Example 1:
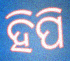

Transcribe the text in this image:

ହିପି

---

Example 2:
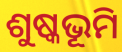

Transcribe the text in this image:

ଶୁଷ୍କଭୂମି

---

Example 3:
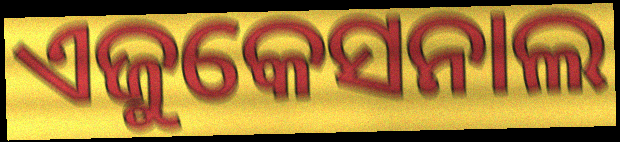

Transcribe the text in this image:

ଏଜୁକେସନାଲ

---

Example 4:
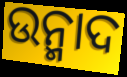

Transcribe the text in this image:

ଉନ୍ମାଦ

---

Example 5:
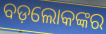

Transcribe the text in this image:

ବଡ଼ଲୋକଙ୍କର